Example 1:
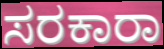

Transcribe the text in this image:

ಸರಕಾರಾ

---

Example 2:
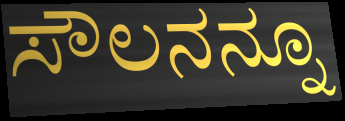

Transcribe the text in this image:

ಸೌಲನನ್ನೂ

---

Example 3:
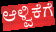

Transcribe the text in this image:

ಆಳ್ವಿಕೆಗೆ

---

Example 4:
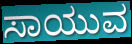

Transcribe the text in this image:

ಸಾಯುವ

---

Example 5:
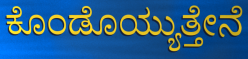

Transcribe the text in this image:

ಕೊಂಡೊಯ್ಯುತ್ತೇನೆ